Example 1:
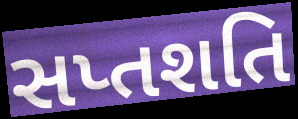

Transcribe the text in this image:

સપ્તશતિ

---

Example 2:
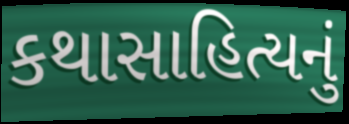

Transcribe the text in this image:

કથાસાહિત્યનું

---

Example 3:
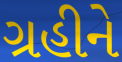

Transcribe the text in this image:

ગ્રહીને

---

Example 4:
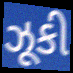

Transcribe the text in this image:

ઝૂકી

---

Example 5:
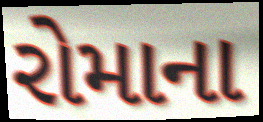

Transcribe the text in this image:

રોમાના